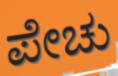
ಪೇಚು